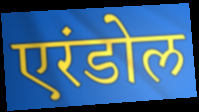
एरंडोल